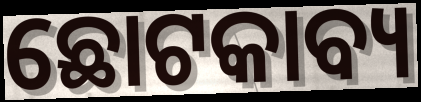
ଛୋଟକାବ୍ୟ